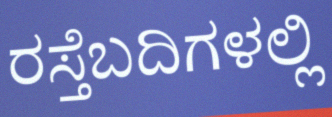
ರಸ್ತೆಬದಿಗಳಲ್ಲಿ